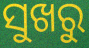
ସୁଖରୁ